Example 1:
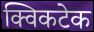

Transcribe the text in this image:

क्विकटेक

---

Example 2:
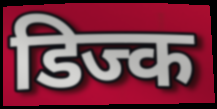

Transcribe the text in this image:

डिज्क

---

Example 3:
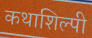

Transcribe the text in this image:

कथाशिल्पी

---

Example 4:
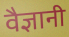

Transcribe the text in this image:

वैज्ञानी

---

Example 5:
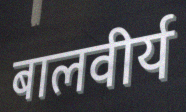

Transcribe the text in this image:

बालवीर्य